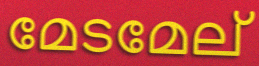
മേടമേല്